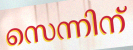
സെന്നിന്